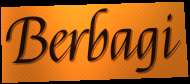
Berbagi